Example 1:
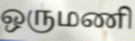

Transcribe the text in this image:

ஒருமணி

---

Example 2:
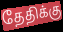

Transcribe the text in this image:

தேதிக்கு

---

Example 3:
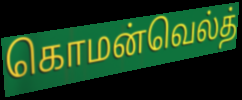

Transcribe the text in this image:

கொமன்வெல்த்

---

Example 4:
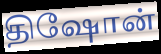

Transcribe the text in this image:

திஷோன்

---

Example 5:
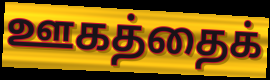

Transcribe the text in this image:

ஊகத்தைக்